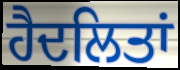
ਹੈਦਲਿਤਾਂ